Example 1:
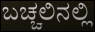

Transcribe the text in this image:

ಬಚ್ಚಲಿನಲ್ಲಿ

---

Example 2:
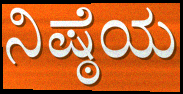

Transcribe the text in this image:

ನಿಷ್ಠೆಯ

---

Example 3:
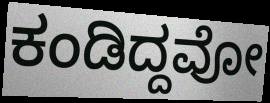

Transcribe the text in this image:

ಕಂಡಿದ್ದವೋ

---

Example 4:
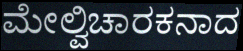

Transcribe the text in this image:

ಮೇಲ್ವಿಚಾರಕನಾದ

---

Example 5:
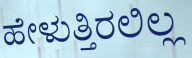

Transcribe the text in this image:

ಹೇಳುತ್ತಿರಲಿಲ್ಲ